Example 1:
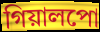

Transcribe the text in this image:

গিয়ালপো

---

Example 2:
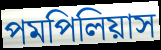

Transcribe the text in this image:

পমপিলিয়াস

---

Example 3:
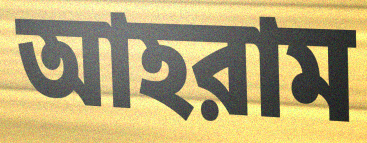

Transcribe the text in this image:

আহরাম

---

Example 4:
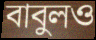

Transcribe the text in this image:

বাবুলও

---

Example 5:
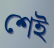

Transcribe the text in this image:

শেই